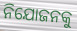
ନିଯୋଜନକୁ